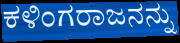
ಕಳಿಂಗರಾಜನನ್ನು